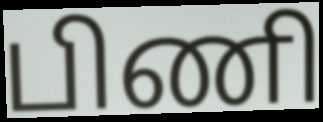
பிணி